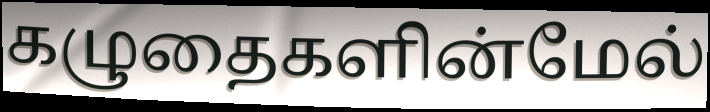
கழுதைகளின்மேல்